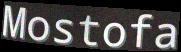
Mostofa